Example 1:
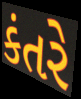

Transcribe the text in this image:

કંતરે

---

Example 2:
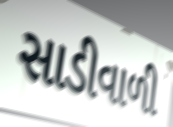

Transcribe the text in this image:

સાડીવાળી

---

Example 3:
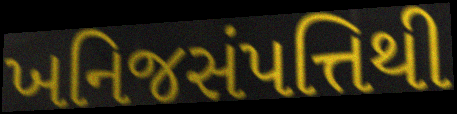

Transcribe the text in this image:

ખનિજસંપત્તિથી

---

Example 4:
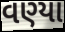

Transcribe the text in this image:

વણ્યા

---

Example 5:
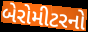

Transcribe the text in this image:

બેરોમીટરનો